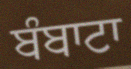
ਬੰਬਾਟਾ